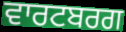
ਵਾਰਟਬਰਗ